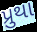
પ્રુથા